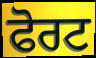
ਫੋਰਟ